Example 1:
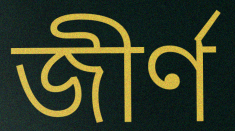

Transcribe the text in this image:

জীৰ্ণ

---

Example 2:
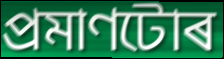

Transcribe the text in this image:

প্ৰমাণটোৰ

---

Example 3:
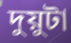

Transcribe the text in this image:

দুয়ুটা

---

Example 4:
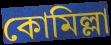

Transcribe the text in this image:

কোমিল্লা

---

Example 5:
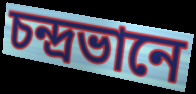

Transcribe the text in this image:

চন্দ্ৰভানে